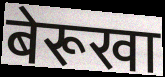
बेरूखा